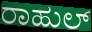
ರಾಹುಲ್